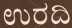
ಉರದಿ